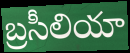
బ్రసీలియా